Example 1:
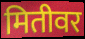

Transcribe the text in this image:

मितीवर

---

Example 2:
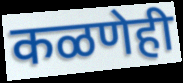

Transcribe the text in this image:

कळणेही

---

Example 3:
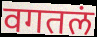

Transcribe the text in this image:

वगतलं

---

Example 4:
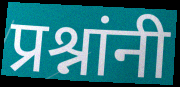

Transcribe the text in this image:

प्रश्नांनी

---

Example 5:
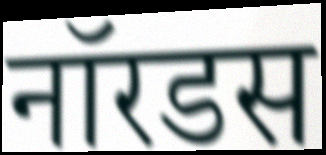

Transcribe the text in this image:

नॉरडस